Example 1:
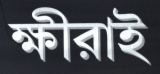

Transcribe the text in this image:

ক্ষীরাই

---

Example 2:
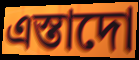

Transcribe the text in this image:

এস্তাদো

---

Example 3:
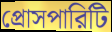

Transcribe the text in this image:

প্রোসপারিটি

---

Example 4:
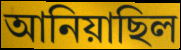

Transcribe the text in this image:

আনিয়াছিল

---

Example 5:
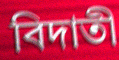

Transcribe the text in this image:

বিদাতী